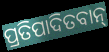
ପ୍ରତିପାଦିତବାନ୍